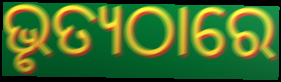
ଭୃତ୍ୟଠାରେ